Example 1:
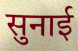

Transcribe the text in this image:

सुनाई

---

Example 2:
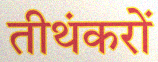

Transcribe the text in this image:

तीथंकरों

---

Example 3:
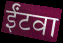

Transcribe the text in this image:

ईंटवा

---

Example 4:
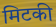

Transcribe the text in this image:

मिटकी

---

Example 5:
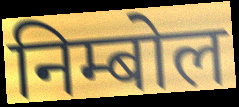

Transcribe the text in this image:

निम्बोल